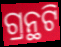
ଗ୍ରନ୍ଥଟି